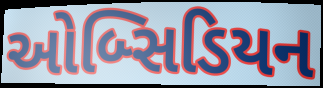
ઓબ્સિડિયન